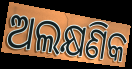
ଅଲକ୍ଷଣିକ